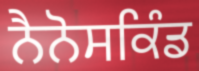
ਨੈਨੋਸਕਿੰਡ